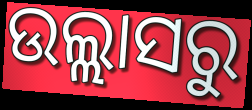
ଉଲ୍ଲାସରୁ